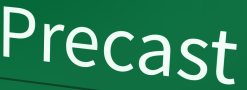
Precast